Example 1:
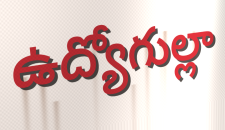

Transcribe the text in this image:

ఉద్యోగుల్లా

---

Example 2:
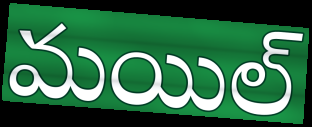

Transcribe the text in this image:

మయిల్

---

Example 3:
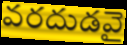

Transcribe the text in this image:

వరదుడవై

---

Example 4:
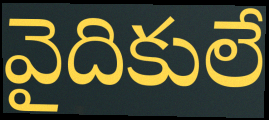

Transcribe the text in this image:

వైదికులే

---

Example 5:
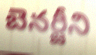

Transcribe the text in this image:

బెనర్జీని